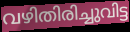
വഴിതിരിച്ചുവിട്ട